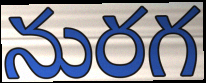
నురగ